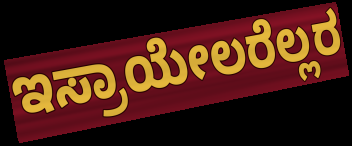
ಇಸ್ರಾಯೇಲರೆಲ್ಲರ